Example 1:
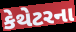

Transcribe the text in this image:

કેથેટરના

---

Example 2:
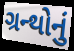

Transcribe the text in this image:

ગ્રન્થોનું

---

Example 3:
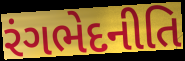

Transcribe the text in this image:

રંગભેદનીતિ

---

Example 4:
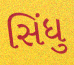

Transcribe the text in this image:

સિંધુ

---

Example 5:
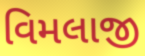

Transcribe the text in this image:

વિમલાજી